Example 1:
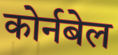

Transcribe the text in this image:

कोर्नबेल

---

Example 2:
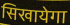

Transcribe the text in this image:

सिखायेगा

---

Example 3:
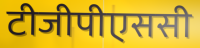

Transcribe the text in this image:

टीजीपीएससी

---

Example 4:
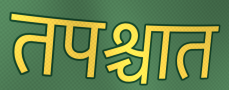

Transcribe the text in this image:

तपश्चात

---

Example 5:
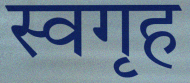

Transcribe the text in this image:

स्वगृह